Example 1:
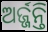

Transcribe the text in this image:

ଅର୍ଜ୍ଜନ୍ତି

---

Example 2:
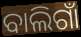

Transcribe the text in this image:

ବାଲିଗାଁ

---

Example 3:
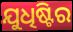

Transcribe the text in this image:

ଯୁଧିଷ୍ଟିର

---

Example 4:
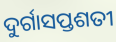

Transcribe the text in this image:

ଦୁର୍ଗାସପ୍ତଶତୀ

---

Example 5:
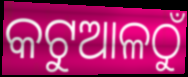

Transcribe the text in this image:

କଟୁଆଳଠୁଁ